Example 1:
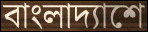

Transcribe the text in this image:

বাংলাদ্যাশে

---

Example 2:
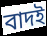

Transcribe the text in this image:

বাদই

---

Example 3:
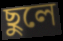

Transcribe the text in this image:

ছুলে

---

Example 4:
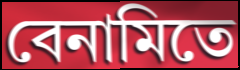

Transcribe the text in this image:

বেনামিতে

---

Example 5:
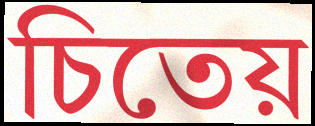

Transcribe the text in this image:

চিতেয়